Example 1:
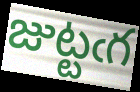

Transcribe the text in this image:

జుట్టఁగ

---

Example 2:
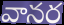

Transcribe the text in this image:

వానర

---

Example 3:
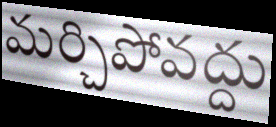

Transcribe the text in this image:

మర్చిపోవద్దు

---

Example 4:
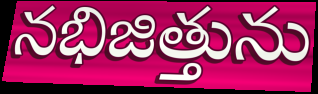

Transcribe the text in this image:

నభిజిత్తును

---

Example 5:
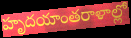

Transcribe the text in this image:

హృదయాంతరాళాల్లో